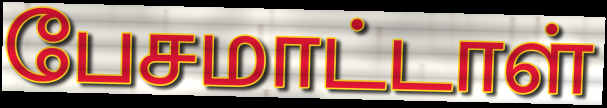
பேசமாட்டாள்